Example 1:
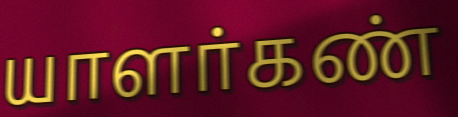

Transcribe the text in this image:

யாளர்கண்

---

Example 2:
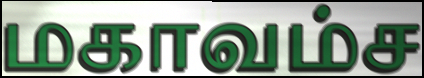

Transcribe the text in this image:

மகாவம்ச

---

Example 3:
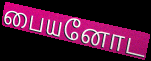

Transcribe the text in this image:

பையனோட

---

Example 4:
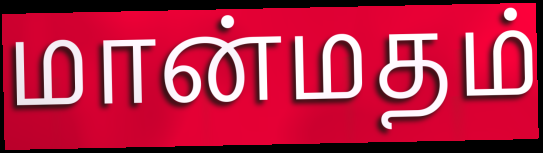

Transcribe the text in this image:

மான்மதம்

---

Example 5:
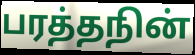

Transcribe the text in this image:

பரத்தநின்